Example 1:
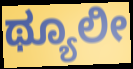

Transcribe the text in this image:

ಥ್ಯೂಲೀ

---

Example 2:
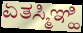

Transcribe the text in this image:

ಏತಸ್ಮಿಞ್ಹಿ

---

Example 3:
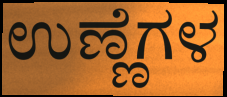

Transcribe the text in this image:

ಉಣ್ಣೆಗಳ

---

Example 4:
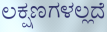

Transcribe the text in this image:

ಲಕ್ಷಣಗಳಲ್ಲದೆ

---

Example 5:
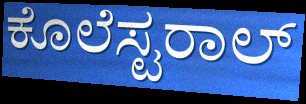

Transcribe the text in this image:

ಕೊಲೆಸ್ಟರಾಲ್